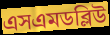
এসএমডব্লিউ